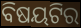
ବିଷୟଟିର